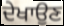
ਦੇਖਾਉਣ